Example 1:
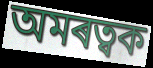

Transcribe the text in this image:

অমৰত্বক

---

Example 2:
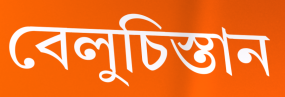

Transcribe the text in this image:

বেলুচিস্তান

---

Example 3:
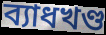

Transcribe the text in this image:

ব্যাধখণ্ড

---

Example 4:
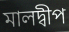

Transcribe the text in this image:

মালদ্বীপ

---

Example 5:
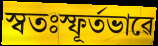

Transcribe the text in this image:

স্বতঃস্ফূৰ্তভাৱে